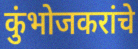
कुंभोजकरांचे